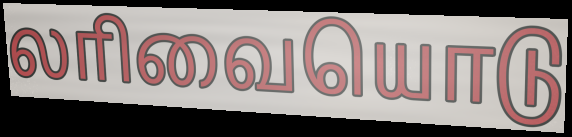
லரிவையொடு